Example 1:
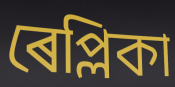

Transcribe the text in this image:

ৰেপ্লিকা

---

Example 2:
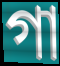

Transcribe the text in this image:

গা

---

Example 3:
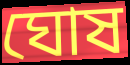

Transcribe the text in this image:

ঘোষ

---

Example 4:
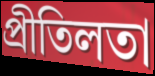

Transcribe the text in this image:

প্ৰীতিলতা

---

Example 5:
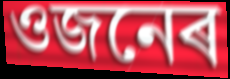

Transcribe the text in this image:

ওজনেৰ